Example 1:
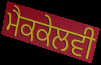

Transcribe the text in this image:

ਮੈਕਕੇਲਵੀ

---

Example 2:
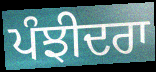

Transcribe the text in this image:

ਪੰਝੀਦਰਾ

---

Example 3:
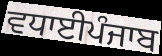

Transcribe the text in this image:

ਵਧਾਈਪੰਜਾਬ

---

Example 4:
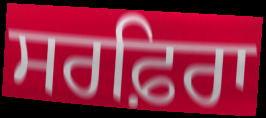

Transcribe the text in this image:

ਸਰਫ਼ਿਰਾ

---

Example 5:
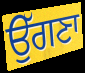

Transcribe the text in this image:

ਉੱਗਣਾ